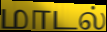
மாடல்